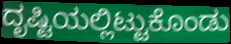
ದೃಷ್ಟಿಯಲ್ಲಿಟ್ಟುಕೊಂಡು